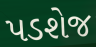
પડશેજ